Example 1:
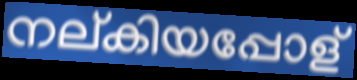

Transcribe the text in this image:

നല്കിയപ്പോള്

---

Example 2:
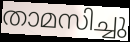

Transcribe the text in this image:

താമസിച്ചു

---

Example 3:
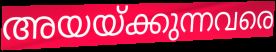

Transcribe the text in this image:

അയയ്ക്കുന്നവരെ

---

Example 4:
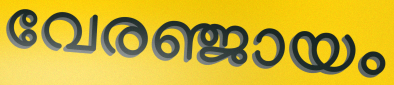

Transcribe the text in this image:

വേരഞ്ജായം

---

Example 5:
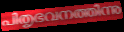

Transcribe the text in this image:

പിതൃഭവനത്തിന്നു